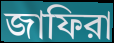
জাফিরা